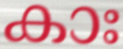
കാഃ